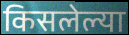
किसलेल्या